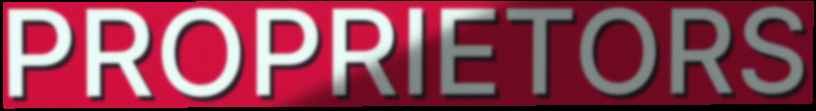
PROPRIETORS